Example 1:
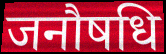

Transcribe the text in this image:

जनौषधि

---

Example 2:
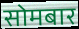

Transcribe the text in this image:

सोमबार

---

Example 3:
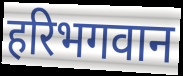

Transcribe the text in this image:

हरिभगवान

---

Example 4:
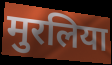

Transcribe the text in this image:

मुरलिया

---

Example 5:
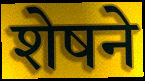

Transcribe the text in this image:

शेषने